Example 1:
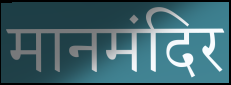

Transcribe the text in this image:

मानमंदिर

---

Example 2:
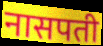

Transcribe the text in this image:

नासपती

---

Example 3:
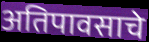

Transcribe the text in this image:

अतिपावसाचे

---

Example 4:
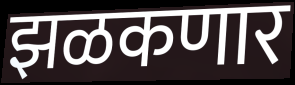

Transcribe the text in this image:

झळकणार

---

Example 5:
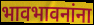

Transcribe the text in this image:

भावभावनांना